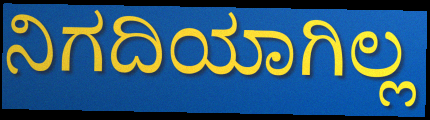
ನಿಗದಿಯಾಗಿಲ್ಲ